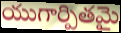
యుగార్పితమై